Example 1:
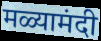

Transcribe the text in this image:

मळ्यामंदी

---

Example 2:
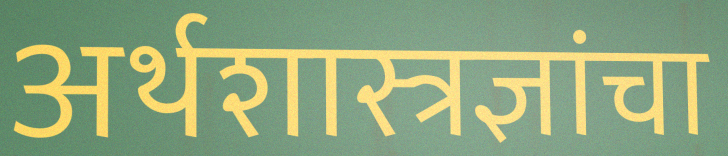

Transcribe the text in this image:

अर्थशास्त्रज्ञांचा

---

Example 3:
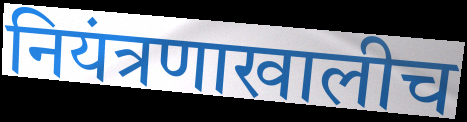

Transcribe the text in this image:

नियंत्रणाखालीच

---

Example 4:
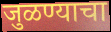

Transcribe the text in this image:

जुळण्याचा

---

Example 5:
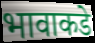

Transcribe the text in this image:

भावाकडे